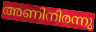
അണിനിരന്നു